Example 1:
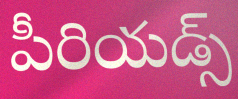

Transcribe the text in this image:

పీరియడ్స్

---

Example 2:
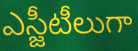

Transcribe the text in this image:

ఎస్జీటీలుగా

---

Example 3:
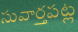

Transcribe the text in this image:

సువార్తపట్ల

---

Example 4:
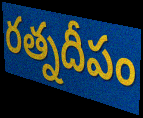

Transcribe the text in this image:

రత్నదీపం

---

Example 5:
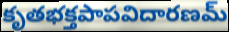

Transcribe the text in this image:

కృతభక్తపాపవిదారణమ్